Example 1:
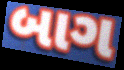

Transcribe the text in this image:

બાગ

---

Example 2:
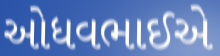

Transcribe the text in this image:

ઓધવભાઈએ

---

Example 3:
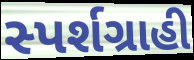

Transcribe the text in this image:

સ્પર્શગ્રાહી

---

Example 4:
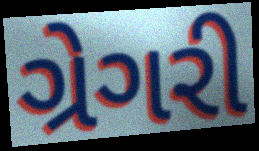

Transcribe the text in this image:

ગ્રેગરી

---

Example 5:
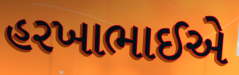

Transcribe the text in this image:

હરખાભાઈએ